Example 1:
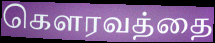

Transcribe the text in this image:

கௌரவத்தை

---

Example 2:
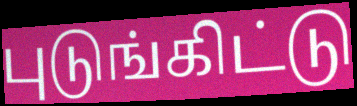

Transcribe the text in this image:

புடுங்கிட்டு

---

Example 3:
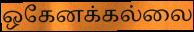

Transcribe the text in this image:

ஒகேனக்கல்லை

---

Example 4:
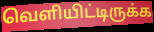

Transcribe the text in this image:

வெளியிட்டிருக்க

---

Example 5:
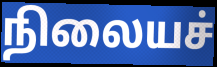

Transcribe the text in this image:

நிலையச்